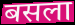
बसला